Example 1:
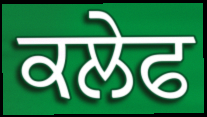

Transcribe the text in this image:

ਕਲੇਫ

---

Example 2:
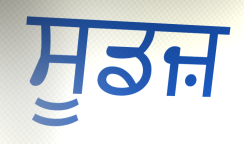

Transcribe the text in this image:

ਸੂਡਜ਼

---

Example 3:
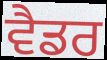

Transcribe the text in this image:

ਵੈਡਰ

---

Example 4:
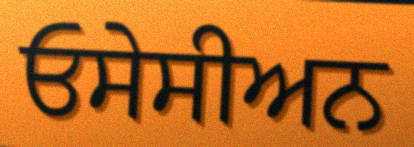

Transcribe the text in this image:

ਓਸੇਸੀਅਨ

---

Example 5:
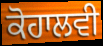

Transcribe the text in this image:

ਕੋਹਾਲਵੀ